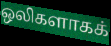
ஒலிகளாகக்